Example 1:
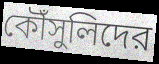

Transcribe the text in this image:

কৌঁসুলিদের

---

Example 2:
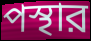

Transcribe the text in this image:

পস্থার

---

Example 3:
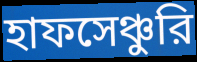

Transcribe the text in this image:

হাফসেঞ্চুরি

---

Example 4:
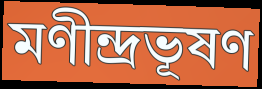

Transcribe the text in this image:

মণীন্দ্রভূষণ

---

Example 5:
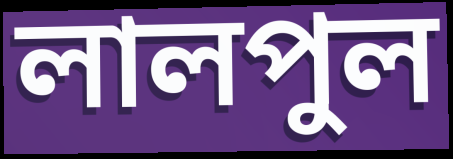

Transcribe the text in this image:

লালপুল